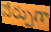
నేర్పుగా